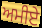
ਅਮੀਏ